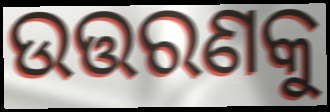
ଉତ୍ତରଣକୁ